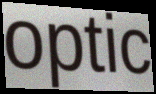
optic